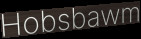
Hobsbawm